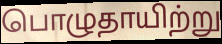
பொழுதாயிற்று